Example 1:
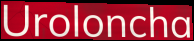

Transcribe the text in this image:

Uroloncha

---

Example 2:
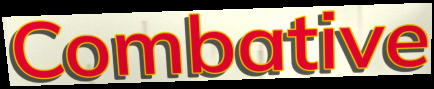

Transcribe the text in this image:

Combative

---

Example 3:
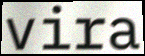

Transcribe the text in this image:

vira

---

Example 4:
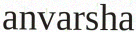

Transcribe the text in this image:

anvarsha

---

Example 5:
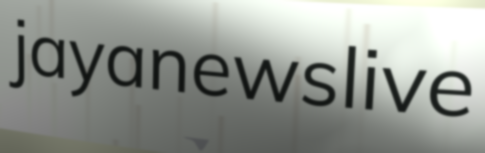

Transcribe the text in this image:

jayanewslive